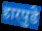
हारपुडे